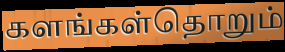
களங்கள்தொறும்